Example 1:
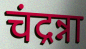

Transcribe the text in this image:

चंद्रन्ना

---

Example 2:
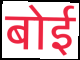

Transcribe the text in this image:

बोई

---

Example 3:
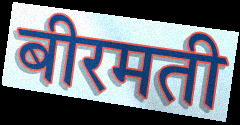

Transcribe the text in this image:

बीरमती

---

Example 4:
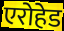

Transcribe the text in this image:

एरोहेड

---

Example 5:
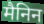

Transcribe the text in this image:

मैनिन